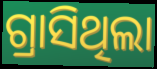
ଗ୍ରାସିଥିଲା